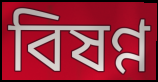
বিষণ্ন